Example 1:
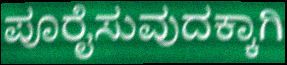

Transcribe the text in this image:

ಪೂರೈಸುವುದಕ್ಕಾಗಿ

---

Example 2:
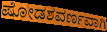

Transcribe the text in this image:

ಷೋಡಶವರ್ಣವಾಗಿ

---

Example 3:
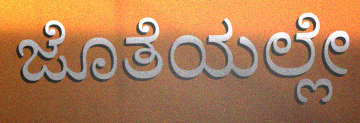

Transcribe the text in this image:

ಜೊತೆಯಲ್ಲೇ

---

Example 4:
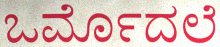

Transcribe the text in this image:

ಒರ್ಮೊದಲೆ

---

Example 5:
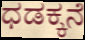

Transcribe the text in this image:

ಧಡಕ್ಕನೆ